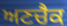
ਅਣਚੈਕ